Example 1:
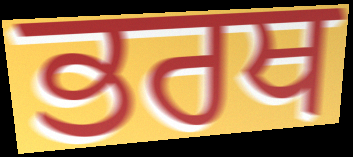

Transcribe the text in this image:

ਭਰਥ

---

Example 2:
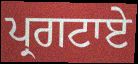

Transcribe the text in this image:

ਪ੍ਰਗਟਾਏ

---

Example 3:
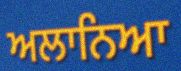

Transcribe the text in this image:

ਅਲਾਨਿਆ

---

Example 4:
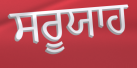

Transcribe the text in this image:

ਸਰੂਯਾਹ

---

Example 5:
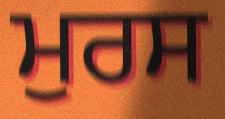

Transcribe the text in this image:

ਮੁਰਸ